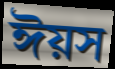
ঈয়স